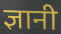
ज्ञानी